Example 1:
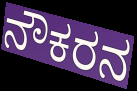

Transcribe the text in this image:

ನೌಕರನ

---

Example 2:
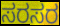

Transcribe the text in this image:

ಸರಸರ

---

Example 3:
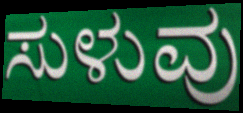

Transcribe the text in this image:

ಸುಳುವು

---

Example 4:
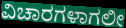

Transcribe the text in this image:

ವಿಚಾರಗಳಾಗಲೀ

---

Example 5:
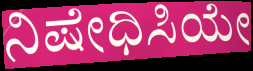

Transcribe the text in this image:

ನಿಷೇಧಿಸಿಯೇ